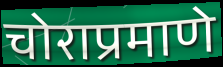
चोराप्रमाणे